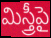
మిస్త్రీపై